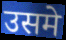
उसमे